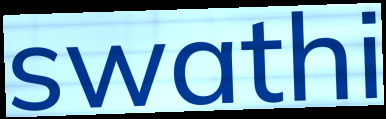
swathi